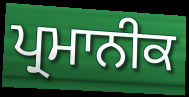
ਪ੍ਰਮਾਨੀਕ